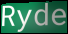
Ryde